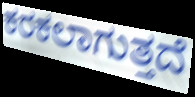
ಕರಕಲಾಗುತ್ತದೆ